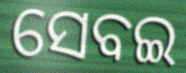
ସେବଇ